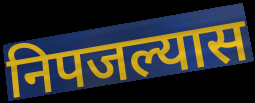
निपजल्यास